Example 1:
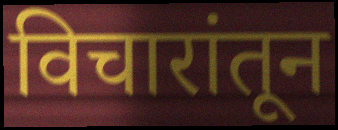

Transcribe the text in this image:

विचारांतून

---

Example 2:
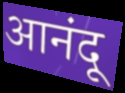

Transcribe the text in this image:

आनंदू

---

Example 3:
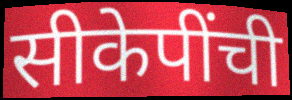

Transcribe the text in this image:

सीकेपींची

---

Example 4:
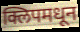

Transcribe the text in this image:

क्लिपमधून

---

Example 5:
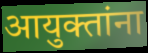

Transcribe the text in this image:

आयुक्‍तांना